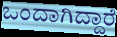
ಒಂದಾಗಿದ್ದಾರೆ